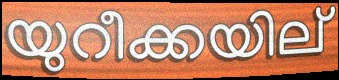
യുറീക്കയില്